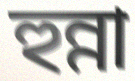
হুন্না